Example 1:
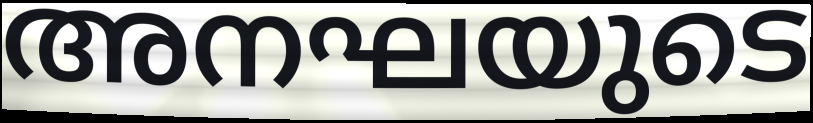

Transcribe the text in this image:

അനഘയുടെ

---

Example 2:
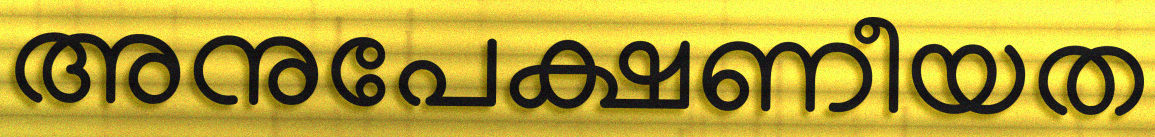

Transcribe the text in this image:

അനുപേക്ഷണീയത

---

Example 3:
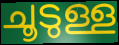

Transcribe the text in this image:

ചൂടുള്ള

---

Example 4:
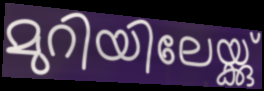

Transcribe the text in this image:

മുറിയിലേയ്ക്കു്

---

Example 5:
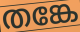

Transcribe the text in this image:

തങ്കേ